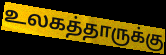
உலகத்தாருக்கு